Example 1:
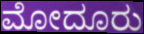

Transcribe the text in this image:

ಮೋದೂರು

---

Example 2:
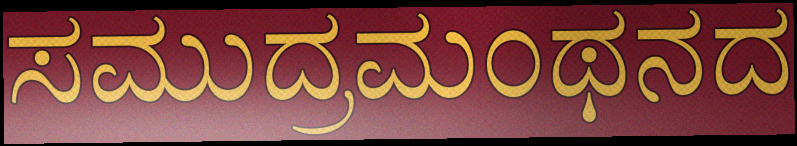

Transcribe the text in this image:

ಸಮುದ್ರಮಂಥನದ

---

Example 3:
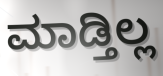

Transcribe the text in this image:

ಮಾಡ್ತಿಲ್ಲ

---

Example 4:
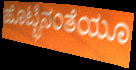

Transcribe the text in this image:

ಹೊಟ್ಟಿನಂತೆಯೂ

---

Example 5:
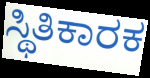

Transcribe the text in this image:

ಸ್ಥಿತಿಕಾರಕ